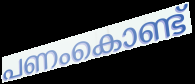
പണംകൊണ്ട്